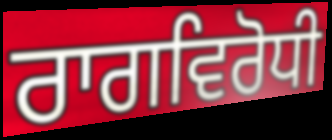
ਰਾਗਵਿਰੋਧੀ